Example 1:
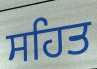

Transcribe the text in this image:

ਸਹਿਤ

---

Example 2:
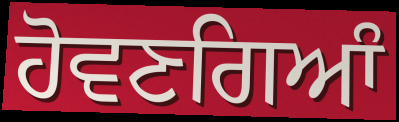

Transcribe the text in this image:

ਹੋਵਣਗਿਆੰ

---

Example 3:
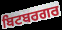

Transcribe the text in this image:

ਬਿਟਬਰਗਰ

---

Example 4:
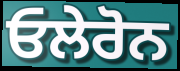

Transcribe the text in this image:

ਓਲੇਰੋਨ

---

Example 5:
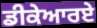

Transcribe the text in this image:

ਡੀਕੇਆਰਏ